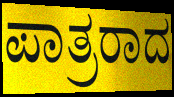
ಪಾತ್ರರಾದ